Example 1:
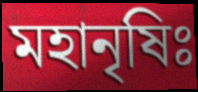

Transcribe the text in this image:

মহানৃষিঃ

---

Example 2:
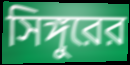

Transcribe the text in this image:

সিঙ্গুরের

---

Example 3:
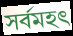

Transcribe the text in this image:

সর্বমহৎ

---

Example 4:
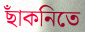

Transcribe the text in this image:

ছাঁকনিতে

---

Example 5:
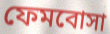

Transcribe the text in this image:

ফেমবোসা